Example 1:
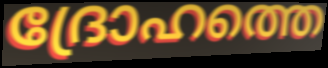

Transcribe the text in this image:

ദ്രോഹത്തെ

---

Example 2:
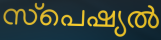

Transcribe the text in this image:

സ്‌പെഷ്യൽ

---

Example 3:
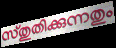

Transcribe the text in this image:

സ്തുതിക്കുന്നതും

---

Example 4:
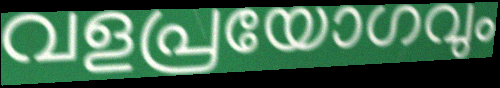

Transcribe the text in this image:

വളപ്രയോഗവും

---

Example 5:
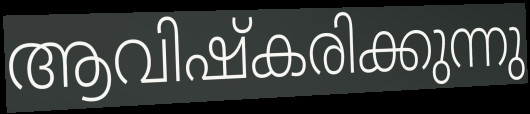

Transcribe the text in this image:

ആവിഷ്കരിക്കുന്നു